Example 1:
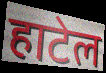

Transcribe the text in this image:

हाटेल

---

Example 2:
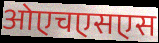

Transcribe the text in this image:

ओएचएसएस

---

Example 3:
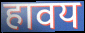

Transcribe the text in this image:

हावय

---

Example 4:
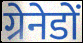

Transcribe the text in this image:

ग्रेनेडों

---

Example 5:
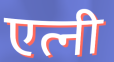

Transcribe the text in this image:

एत्नी